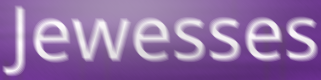
Jewesses